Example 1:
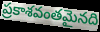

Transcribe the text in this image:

ప్రకాశవంతమైనది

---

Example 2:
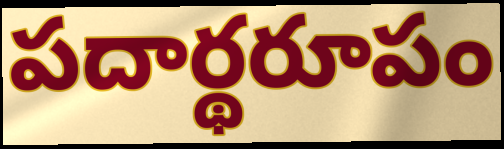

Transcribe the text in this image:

పదార్థరూపం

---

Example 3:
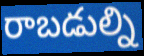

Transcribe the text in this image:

రాబడుల్ని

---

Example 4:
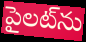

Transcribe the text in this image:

పైలట్‌ను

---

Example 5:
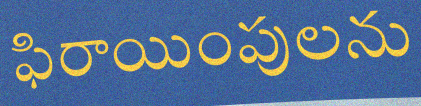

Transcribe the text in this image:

ఫిరాయింపులను